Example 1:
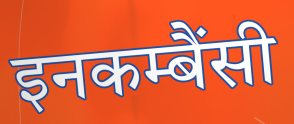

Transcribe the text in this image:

इनकम्बैंसी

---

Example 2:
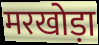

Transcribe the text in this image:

मरखोड़ा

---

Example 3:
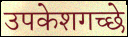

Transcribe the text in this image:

उपकेशगच्छे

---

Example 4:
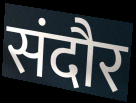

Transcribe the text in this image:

संदौर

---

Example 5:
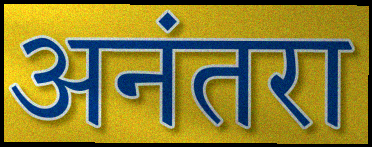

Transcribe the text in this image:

अनंतरा